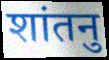
शांतनु